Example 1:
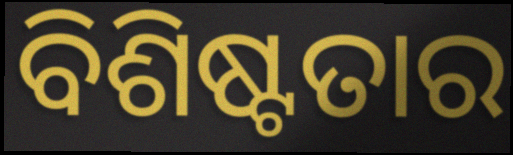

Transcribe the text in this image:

ବିଶିଷ୍ଟତାର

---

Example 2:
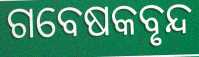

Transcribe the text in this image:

ଗବେଷକବୃନ୍ଦ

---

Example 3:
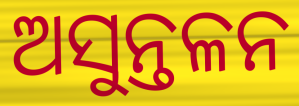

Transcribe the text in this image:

ଅସୁନ୍ତଳନ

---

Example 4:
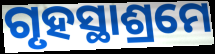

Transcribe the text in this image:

ଗୃହସ୍ଥାଶ୍ରମେ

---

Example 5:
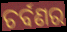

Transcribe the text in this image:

ଚର୍ବଣର